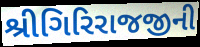
શ્રીગિરિરાજજીની